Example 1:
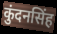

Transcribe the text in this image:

कुंदनसिंह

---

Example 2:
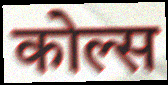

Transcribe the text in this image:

कोल्स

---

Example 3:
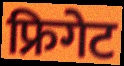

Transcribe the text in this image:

फ्रिगेट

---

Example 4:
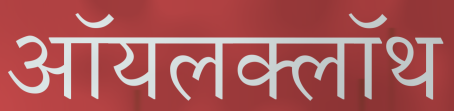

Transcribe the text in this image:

ऑयलक्लॉथ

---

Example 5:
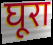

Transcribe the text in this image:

घूरा